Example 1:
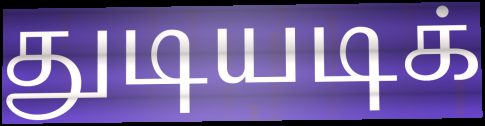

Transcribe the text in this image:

துடியடிக்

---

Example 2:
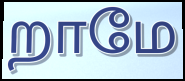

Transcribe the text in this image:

றாமே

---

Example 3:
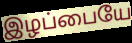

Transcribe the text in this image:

இழப்பையே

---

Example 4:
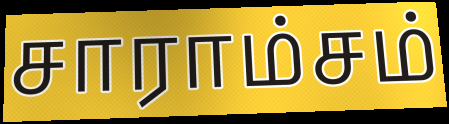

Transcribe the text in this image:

சாராம்சம்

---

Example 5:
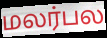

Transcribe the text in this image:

மலர்பல